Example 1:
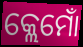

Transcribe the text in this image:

କ୍ଲେମୋଁ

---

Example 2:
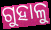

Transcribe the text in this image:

ଗୁହାଳୁ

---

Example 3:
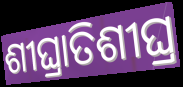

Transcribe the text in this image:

ଶୀଘ୍ରାତିଶୀଘ୍ର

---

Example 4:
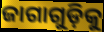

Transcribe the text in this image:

ଜାଗାଗୁଡ଼ିକୁ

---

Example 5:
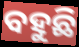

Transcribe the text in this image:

ବହୁଛି